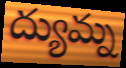
ద్యుమ్న